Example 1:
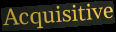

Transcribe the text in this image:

Acquisitive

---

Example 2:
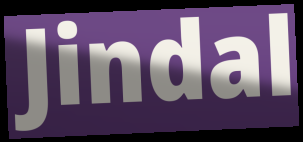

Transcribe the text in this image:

Jindal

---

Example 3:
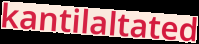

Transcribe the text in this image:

kantilaltated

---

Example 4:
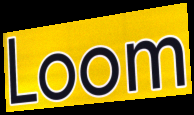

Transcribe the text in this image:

Loom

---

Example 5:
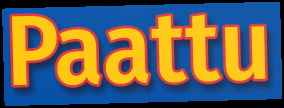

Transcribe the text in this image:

Paattu